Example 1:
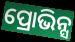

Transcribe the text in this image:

ପ୍ରୋଭିନ୍ସ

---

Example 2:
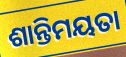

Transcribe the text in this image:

ଶାନ୍ତିମୟତା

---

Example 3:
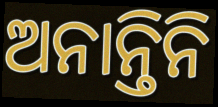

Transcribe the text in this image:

ଅନାନ୍ତିନି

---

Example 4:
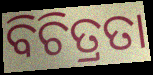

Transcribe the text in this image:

ବିଚିତ୍ରତା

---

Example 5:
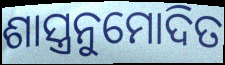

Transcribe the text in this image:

ଶାସ୍ତ୍ରନୁମୋଦିତ